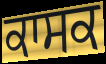
ਕਾਸਕ